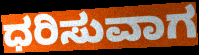
ಧರಿಸುವಾಗ